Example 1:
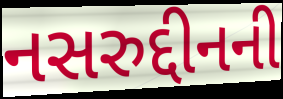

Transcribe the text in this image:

નસરુદ્દીનની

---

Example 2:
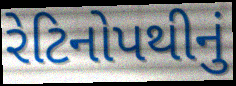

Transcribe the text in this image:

રેટિનોપથીનું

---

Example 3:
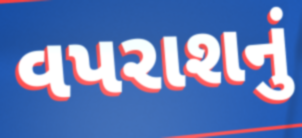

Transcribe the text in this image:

વપરાશનું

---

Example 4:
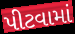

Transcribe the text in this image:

પીટવામાં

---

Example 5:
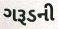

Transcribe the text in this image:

ગરૂડની